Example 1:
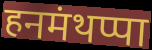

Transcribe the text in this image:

हनमंथप्पा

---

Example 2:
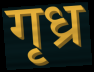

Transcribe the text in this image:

गृध्र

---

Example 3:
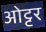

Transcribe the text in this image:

ओट्टर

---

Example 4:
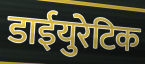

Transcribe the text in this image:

डाईयुरेटिक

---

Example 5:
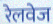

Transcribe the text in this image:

रेलवेज